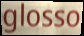
glosso